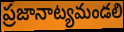
ప్రజానాట్యమండలి